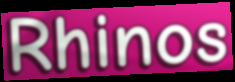
Rhinos